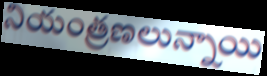
నియంత్రణలున్నాయి